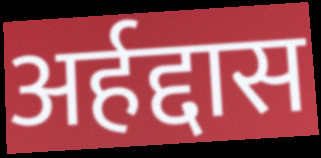
अर्हद्दास